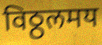
विठ्ठलमय